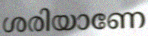
ശരിയാണേ